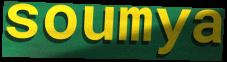
soumya